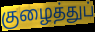
குழைத்துப்